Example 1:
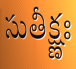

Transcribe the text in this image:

సుతీక్ష్ణః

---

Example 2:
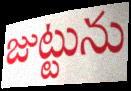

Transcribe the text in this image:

జుట్టును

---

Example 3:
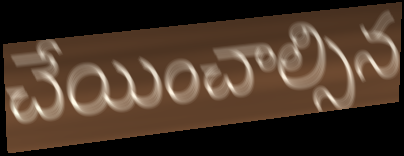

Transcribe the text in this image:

చేయించాల్సిన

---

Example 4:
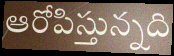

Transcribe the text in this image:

ఆరోపిస్తున్నది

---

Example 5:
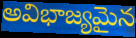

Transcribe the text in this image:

అవిభాజ్యమైన